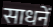
साधनें